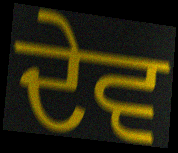
ਦੇਵ